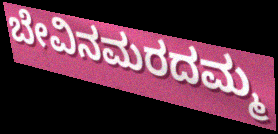
ಬೇವಿನಮರದಮ್ಮ